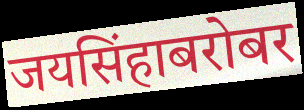
जयसिंहाबरोबर